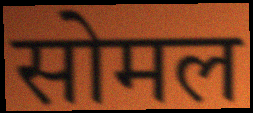
सोमल